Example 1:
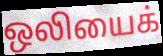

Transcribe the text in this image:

ஒலியைக்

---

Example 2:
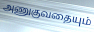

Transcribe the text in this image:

அணுகுவதையும்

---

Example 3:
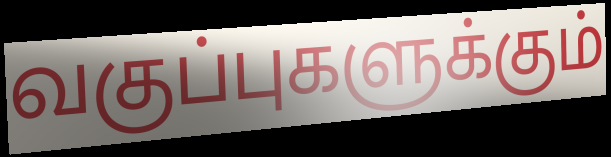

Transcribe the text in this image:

வகுப்புகளுக்கும்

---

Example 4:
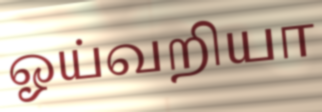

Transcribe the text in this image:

ஓய்வறியா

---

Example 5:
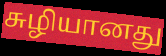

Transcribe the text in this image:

சுழியானது